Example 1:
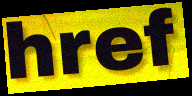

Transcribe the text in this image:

href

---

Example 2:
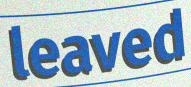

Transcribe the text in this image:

leaved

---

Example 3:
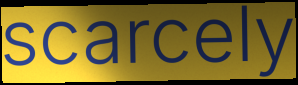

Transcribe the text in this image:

scarcely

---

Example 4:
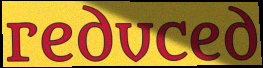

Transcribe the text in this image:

reduced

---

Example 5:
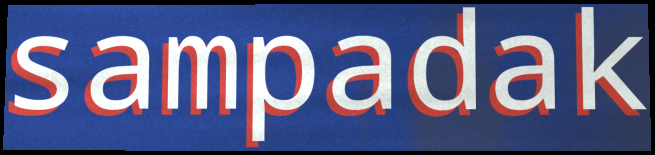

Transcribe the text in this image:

sampadak